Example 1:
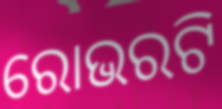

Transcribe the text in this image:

ରୋଭରଟି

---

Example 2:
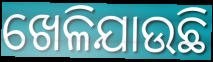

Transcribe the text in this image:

ଖେଳିଯାଉଛି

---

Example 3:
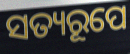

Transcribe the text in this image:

ସତ୍ୟରୂପେ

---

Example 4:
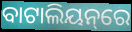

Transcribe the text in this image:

ବାଟାଲିୟନ୍‌ରେ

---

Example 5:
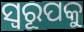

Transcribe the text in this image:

ସ୍ବରୂପକୁ